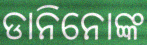
ଡାନିନୋଙ୍କ